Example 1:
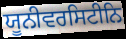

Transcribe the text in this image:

ਯੂਨੀਵਰਸਿਟੀਨਿ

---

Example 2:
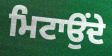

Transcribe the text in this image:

ਮਿਟਾਉਂਦੇ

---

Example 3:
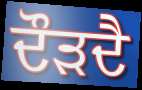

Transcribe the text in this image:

ਦੌੜਦੈ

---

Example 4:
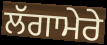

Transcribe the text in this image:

ਲੱਗਾਮੇਰੇ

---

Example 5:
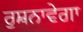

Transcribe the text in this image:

ਰੁਸ਼ਨਾਵੇਗਾ